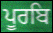
ਪੂਰਬਿ